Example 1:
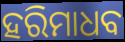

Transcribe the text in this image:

ହରିମାଧବ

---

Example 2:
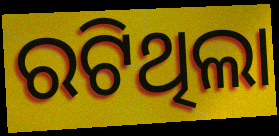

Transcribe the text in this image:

ରଟିଥିଲା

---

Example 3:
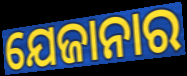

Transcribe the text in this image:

ଯେଜାନାର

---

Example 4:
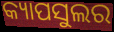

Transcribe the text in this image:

କ୍ୟାପସୁଲର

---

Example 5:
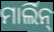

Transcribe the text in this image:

ମାର୍ଲିନ୍